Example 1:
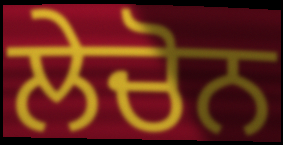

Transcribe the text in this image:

ਲੇਚੋਨ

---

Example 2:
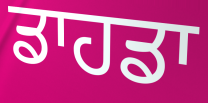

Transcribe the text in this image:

ਡਾਹਡਾ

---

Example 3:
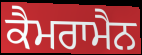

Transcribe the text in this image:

ਕੈਮਰਾਮੈਨ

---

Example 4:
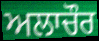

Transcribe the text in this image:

ਅਲਾਚੌਰ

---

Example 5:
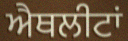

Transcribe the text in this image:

ਐਥਲੀਟਾਂ